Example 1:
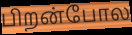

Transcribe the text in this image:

பிறன்போல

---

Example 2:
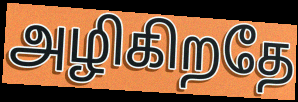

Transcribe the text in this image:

அழிகிறதே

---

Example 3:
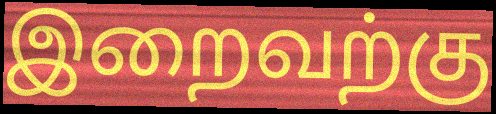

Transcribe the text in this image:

இறைவற்கு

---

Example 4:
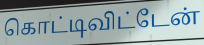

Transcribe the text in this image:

கொட்டிவிட்டேன்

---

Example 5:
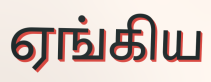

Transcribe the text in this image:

ஏங்கிய